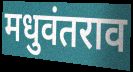
मधुवंतराव